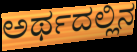
ಅರ್ಥದಲ್ಲಿನ